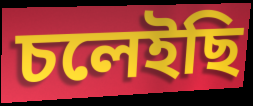
চলেইছি